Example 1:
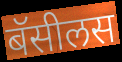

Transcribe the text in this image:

बॅसीलस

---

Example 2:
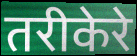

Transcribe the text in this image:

तरीकेरे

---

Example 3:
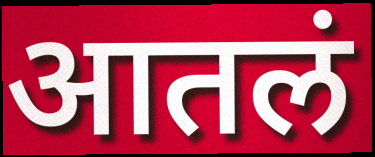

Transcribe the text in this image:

आतलं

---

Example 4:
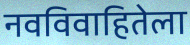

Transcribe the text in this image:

नवविवाहितेला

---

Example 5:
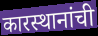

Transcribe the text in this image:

कारस्थानांची